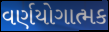
વર્ણયોગાત્મક